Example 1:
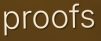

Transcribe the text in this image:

proofs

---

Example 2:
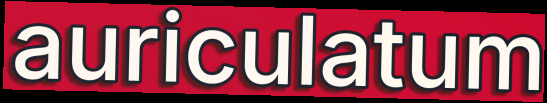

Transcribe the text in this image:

auriculatum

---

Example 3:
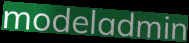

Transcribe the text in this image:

modeladmin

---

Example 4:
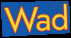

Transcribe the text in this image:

Wad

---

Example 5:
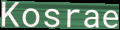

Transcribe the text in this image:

Kosrae